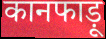
कानफाड़ू